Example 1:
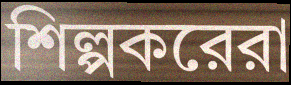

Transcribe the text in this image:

শিল্পকরেরা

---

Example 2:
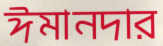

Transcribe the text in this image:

ঈমানদার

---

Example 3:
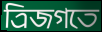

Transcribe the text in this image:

ত্রিজগতে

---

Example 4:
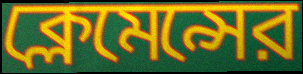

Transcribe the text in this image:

ক্লেমেন্সের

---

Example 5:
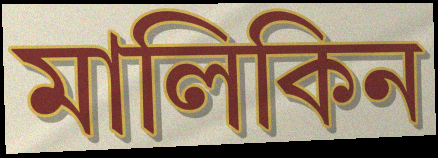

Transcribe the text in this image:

মালিকিন